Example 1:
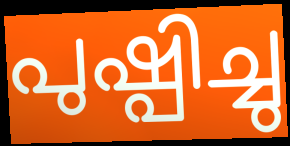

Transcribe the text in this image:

പുഷ്പിച്ചു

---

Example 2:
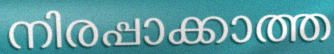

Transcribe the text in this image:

നിരപ്പാക്കാത്ത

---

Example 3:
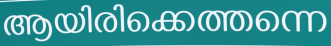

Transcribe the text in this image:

ആയിരിക്കെത്തന്നെ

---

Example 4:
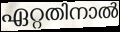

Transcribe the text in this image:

ഏറ്റതിനാൽ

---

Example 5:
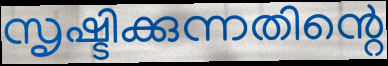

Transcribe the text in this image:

സൃഷ്ടിക്കുന്നതിന്റെ